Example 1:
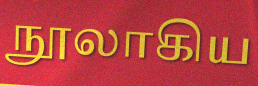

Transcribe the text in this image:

நூலாகிய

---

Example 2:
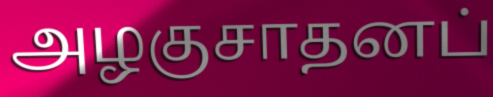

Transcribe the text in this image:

அழகுசாதனப்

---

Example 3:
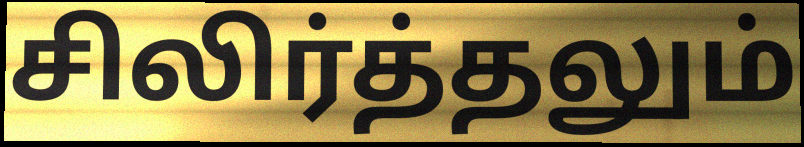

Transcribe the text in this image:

சிலிர்த்தலும்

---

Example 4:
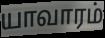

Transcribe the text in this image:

யாவாரம்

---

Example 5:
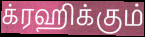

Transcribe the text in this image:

க்ரஹிக்கும்